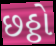
છઠ્ઠો